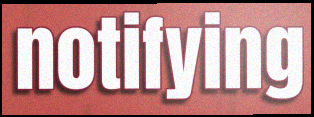
notifying